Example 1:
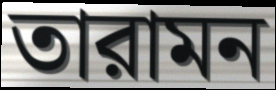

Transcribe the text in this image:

তারামন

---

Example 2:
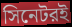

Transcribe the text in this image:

সিনেটরই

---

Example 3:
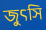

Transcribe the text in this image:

জুৎসি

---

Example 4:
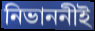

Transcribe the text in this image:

নিভাননীই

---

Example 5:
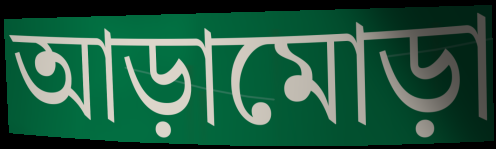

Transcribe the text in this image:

আড়ামোড়া